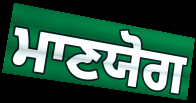
ਮਾਣਯੋਗ